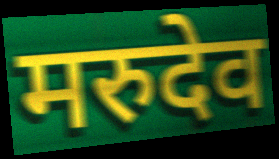
मरुदेव